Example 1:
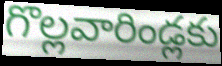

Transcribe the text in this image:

గొల్లవారిండ్లకు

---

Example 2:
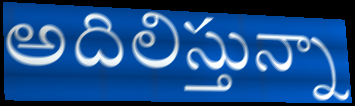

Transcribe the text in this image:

అదిలిస్తున్నా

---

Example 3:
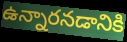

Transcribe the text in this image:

ఉన్నారనడానికి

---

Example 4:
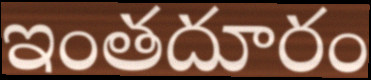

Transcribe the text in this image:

ఇంతదూరం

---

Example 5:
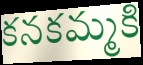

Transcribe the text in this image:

కనకమ్మకి